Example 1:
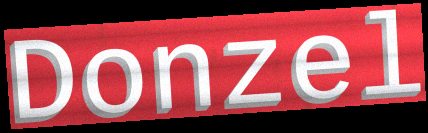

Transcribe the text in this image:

Donzel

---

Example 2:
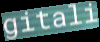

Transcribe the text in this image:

gitali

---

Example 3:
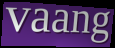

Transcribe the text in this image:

vaang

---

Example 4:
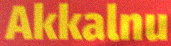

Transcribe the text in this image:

Akkalnu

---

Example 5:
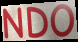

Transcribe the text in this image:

NDO